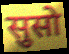
सुसो